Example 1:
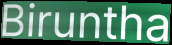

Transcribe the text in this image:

Biruntha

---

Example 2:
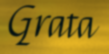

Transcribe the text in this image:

Grata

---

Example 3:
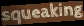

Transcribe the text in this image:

squeaking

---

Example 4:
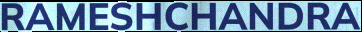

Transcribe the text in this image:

RAMESHCHANDRA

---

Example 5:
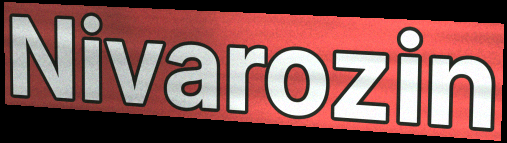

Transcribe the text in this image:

Nivarozin